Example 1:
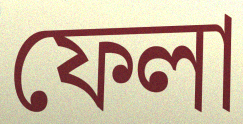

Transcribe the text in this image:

ফেলা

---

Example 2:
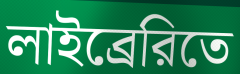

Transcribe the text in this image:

লাইব্রেরিতে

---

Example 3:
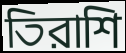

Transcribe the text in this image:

তিরাশি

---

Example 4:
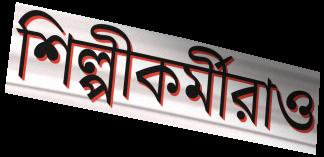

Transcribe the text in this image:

শিল্পীকর্মীরাও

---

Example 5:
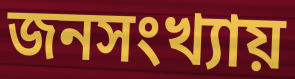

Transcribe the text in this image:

জনসংখ্যায়